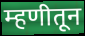
म्हणीतून